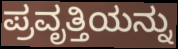
ಪ್ರವೃತ್ತಿಯನ್ನು